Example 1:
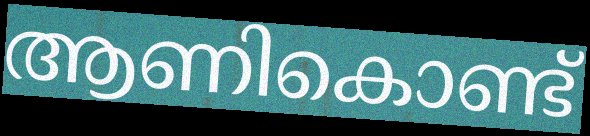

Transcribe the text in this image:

ആണികൊണ്ട്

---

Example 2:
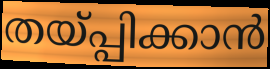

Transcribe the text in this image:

തയ്പ്പിക്കാൻ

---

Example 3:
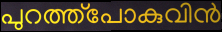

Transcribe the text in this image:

പുറത്ത്പോകുവിൻ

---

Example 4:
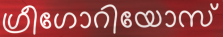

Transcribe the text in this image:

ഗ്രീഗോറിയോസ്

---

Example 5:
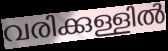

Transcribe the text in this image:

വരിക്കുള്ളിൽ